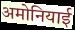
अमोनियाई